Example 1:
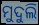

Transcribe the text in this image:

ମୁଦୁଲି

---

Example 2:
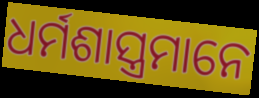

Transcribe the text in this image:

ଧର୍ମଶାସ୍ତ୍ରମାନେ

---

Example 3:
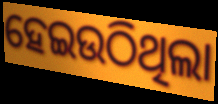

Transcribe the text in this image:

ହେଇଉଠିଥିଲା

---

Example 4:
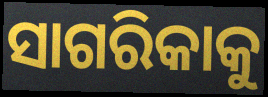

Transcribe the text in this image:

ସାଗରିକାକୁ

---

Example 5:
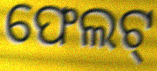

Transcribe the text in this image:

ଫେଲଟ୍